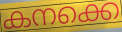
കനക്കെ